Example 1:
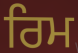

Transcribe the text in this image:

ਰਿਮ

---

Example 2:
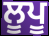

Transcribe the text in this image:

ਲੂਪੂ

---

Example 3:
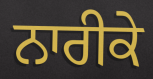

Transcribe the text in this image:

ਨਾਰੀਕੇ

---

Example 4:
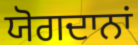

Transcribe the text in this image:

ਯੋਗਦਾਨਾਂ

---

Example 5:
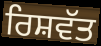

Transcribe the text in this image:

ਰਿਸ਼ਵੱਤ